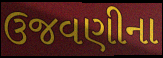
ઉજવણીના